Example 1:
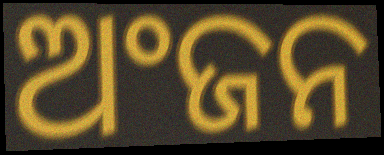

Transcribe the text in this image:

ଅଂଜନ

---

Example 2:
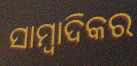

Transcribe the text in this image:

ସାମ୍ବାଦିକର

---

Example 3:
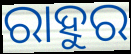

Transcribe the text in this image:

ରାହୁର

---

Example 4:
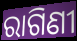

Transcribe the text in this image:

ରାଗିଣୀ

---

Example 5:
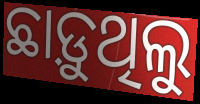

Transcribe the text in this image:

ଛାଡ଼ୁଥିଲୁ